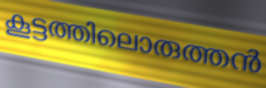
കൂട്ടത്തിലൊരുത്തൻ